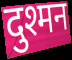
दुश्मन